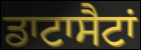
ਡਾਟਾਸੈਟਾਂ